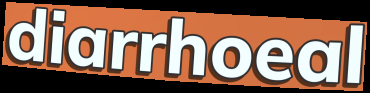
diarrhoeal